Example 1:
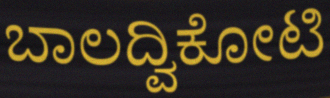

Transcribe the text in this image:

ಬಾಲದ್ವಿಕೋಟಿ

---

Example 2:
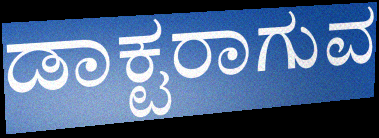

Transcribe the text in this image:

ಡಾಕ್ಟರಾಗುವ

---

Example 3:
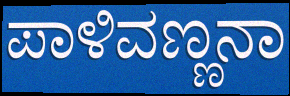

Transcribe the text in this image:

ಪಾಳಿವಣ್ಣನಾ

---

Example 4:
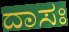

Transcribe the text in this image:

ದಾಸಃ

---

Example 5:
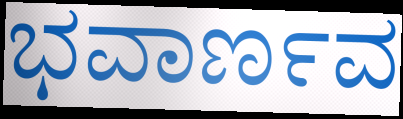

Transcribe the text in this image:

ಭವಾರ್ಣವ